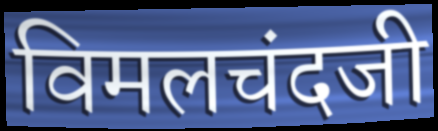
विमलचंदजी